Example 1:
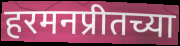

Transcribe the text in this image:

हरमनप्रीतच्या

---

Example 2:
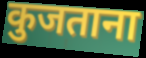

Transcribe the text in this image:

कुजताना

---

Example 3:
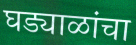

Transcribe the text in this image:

घड्याळांचा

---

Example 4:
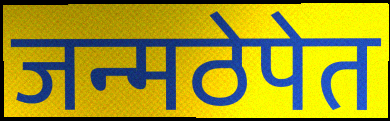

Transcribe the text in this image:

जन्मठेपेत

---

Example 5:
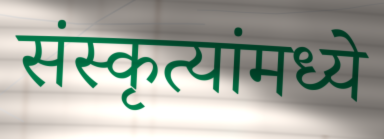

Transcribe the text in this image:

संस्कृत्यांमध्ये